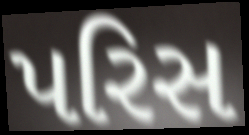
પરિસ